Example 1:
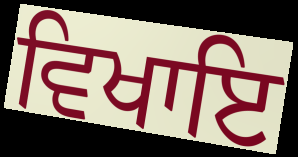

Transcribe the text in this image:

ਵਿਖਾਇ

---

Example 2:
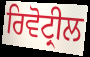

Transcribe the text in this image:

ਰਿਵੋਟ੍ਰੀਲ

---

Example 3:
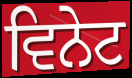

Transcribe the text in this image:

ਵਿਨੇਟ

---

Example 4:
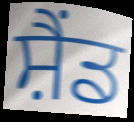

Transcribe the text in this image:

ਸ਼ੈਂਡ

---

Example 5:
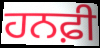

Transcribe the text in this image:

ਹਨਫ਼ੀ